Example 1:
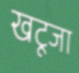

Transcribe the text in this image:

खटूजा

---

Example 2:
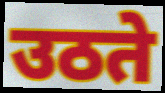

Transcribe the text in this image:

उठते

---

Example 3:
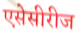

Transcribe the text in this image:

एसेसीरीज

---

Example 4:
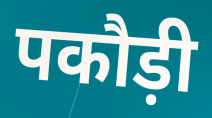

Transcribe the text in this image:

पकौड़ी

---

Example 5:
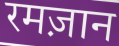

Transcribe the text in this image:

रमज़ान